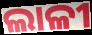
ଲାଳୀ